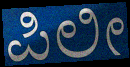
ಪಿಲೀ